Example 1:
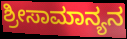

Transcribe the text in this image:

ಶ್ರೀಸಾಮಾನ್ಯನ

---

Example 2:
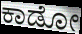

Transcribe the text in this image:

ಕಾಡೋ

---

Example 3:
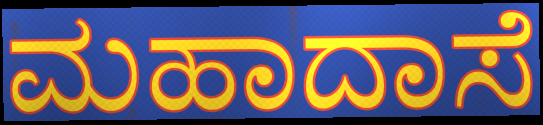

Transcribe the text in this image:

ಮಹಾದಾಸೆ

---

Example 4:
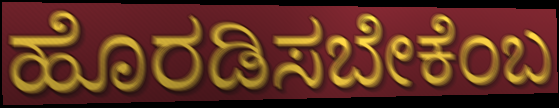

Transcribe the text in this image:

ಹೊರಡಿಸಬೇಕೆಂಬ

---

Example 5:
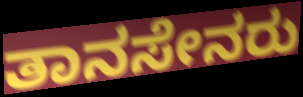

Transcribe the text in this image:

ತಾನಸೇನರು